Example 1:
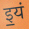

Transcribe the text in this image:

इ॒यं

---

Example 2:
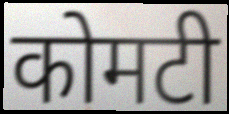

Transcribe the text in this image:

कोमटी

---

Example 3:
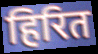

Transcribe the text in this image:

हिरित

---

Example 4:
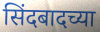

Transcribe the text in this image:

सिंदबादच्या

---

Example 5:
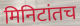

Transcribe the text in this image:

मिनिटांतच